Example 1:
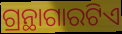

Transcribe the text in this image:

ଗ୍ରନ୍ଥାଗାରଟିଏ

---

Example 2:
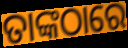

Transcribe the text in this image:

ତାଙ୍କଠାରେ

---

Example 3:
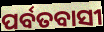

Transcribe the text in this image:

ପର୍ବତବାସୀ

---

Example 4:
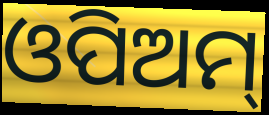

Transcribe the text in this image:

ଓପିଅମ୍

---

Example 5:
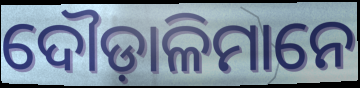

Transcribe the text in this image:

ଦୌଡ଼ାଳିମାନେ